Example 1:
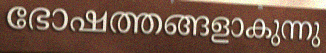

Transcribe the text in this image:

ഭോഷത്തങ്ങളാകുന്നു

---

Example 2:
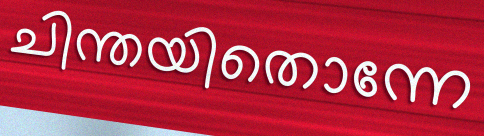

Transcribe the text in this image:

ചിന്തയിതൊന്നേ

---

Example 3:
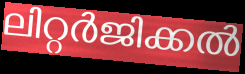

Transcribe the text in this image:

ലിറ്റർജിക്കൽ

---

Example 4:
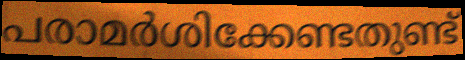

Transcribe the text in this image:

പരാമർശിക്കേണ്ടതുണ്ട്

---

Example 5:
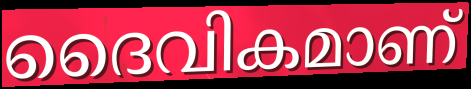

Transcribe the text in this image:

ദൈവികമാണ്